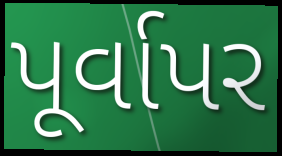
પૂર્વાપર